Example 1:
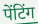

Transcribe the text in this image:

पेंटिंग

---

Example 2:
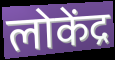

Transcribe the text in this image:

लोकेंद्र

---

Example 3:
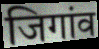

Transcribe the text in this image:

जिगांव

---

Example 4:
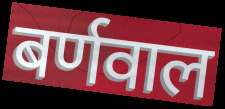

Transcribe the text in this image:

बर्णवाल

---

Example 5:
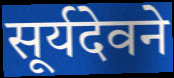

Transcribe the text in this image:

सूर्यदेवने